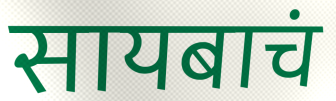
सायबाचं